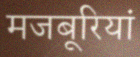
मजबूरियां